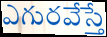
ఎగురవేస్తే